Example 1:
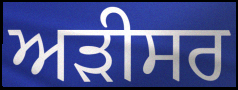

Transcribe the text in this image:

ਅੜੀਸਰ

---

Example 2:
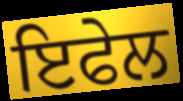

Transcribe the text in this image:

ਇਫੇਲ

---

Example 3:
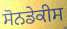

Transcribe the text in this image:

ਸੋਨਡੇਕੀਸ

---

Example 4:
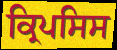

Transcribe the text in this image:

ਕ੍ਰਿਪਸਿਸ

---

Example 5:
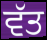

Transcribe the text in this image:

ਵੱਤ